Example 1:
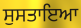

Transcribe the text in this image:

ਸੁਸਤਾਇਆ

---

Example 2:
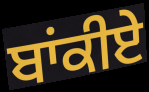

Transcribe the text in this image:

ਬਾਂਕੀਏ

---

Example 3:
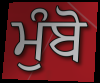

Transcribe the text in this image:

ਮੁੰਬੋ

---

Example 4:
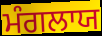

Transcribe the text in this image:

ਮੰਗਲਾਯ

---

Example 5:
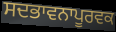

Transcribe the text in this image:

ਸਦਭਾਵਨਾਪੂਰਵਕ